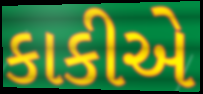
કાકીએ